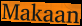
Makaan